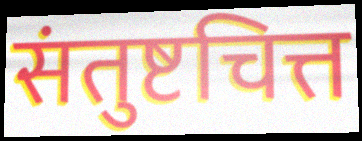
संतुष्टचित्त